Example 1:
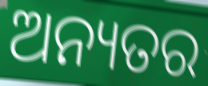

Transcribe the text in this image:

ଅନ୍ୟତର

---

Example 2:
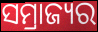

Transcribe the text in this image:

ସମ୍ରାଜ୍ୟର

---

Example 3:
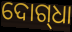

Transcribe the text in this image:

ଦୋଗ୍‌ଧା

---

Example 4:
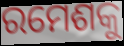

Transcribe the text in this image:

ରମେଶକୁ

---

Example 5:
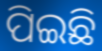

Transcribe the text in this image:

ପିଇଛି